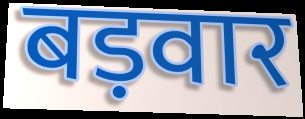
बड़वार